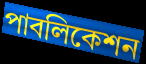
পাবলিকেশন